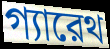
গ্যারেথ